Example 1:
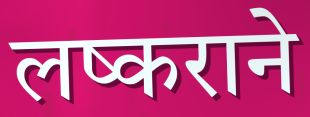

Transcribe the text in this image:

लष्कराने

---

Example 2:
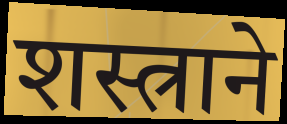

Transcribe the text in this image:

शस्त्राने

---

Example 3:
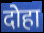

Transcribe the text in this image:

दोहा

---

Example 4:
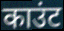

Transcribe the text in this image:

काउंट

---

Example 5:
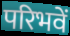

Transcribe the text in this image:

परिभवें